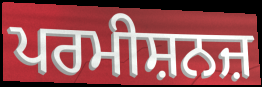
ਪਰਮੀਸ਼ਨਜ਼